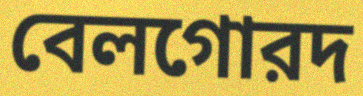
বেলগোরদ